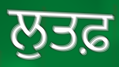
ਲੁਤਫ਼